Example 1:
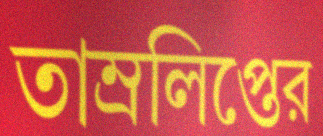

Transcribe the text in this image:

তাম্রলিপ্তের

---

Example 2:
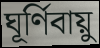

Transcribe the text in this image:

ঘূর্ণিবায়ু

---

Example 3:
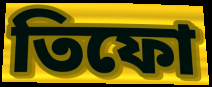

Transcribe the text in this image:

তিফো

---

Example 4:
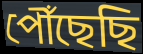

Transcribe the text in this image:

পৌঁছেছি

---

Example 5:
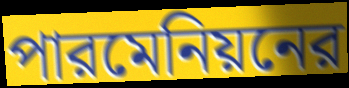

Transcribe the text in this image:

পারমেনিয়নের